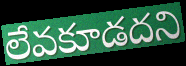
లేవకూడదని